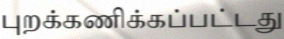
புறக்கணிக்கப்பட்டது